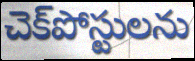
చెక్‌పోస్టులను